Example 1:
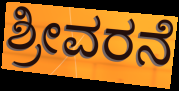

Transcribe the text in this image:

ಶ್ರೀವರನೆ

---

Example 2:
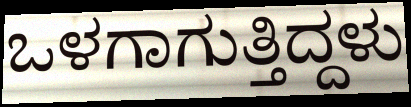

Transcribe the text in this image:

ಒಳಗಾಗುತ್ತಿದ್ದಳು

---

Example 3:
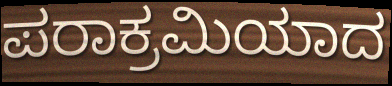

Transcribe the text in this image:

ಪರಾಕ್ರಮಿಯಾದ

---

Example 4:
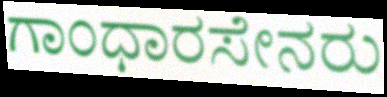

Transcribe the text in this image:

ಗಾಂಧಾರಸೇನರು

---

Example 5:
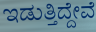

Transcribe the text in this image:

ಇಡುತ್ತಿದ್ದೇವೆ